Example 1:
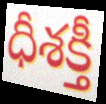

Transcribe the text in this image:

ధీశక్తీ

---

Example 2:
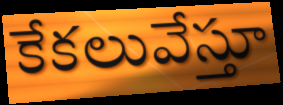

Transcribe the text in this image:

కేకలువేస్తూ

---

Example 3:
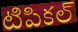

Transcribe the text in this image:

టిపికల్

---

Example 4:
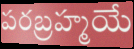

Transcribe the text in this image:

పరబ్రహ్మయే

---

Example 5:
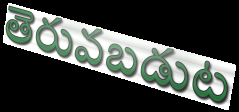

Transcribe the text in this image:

తెరువబడుట